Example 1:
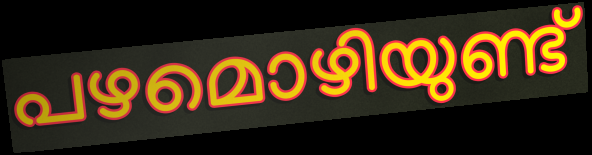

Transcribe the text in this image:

പഴമൊഴിയുണ്ട്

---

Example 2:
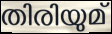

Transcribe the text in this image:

തിരിയുമ്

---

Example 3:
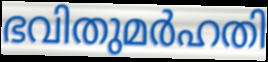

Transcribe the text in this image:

ഭവിതുമർഹതി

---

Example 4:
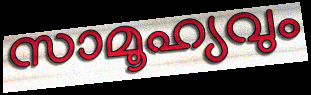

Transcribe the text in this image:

സാമൂഹ്യവും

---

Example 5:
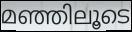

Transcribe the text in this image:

മഞ്ഞിലൂടെ